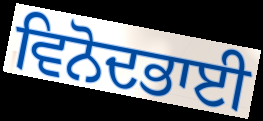
ਵਿਨੋਦਭਾਈ